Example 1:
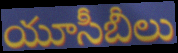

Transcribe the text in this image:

యూసీబీలు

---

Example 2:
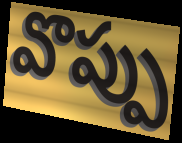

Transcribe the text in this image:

వొప్పు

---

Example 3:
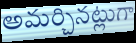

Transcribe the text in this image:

అమర్చినట్లుగా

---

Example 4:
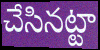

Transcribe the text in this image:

చేసినట్టా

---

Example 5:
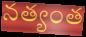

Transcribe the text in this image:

నత్యంత